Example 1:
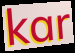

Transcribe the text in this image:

kar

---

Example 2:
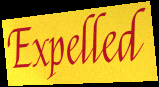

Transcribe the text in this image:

Expelled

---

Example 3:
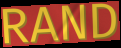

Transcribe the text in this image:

RAND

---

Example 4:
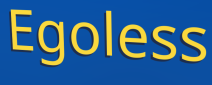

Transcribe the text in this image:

Egoless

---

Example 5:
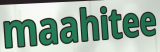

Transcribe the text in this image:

maahitee